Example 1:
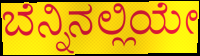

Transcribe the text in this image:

ಬೆನ್ನಿನಲ್ಲಿಯೇ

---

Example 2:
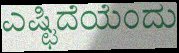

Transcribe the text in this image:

ಎಷ್ಟಿದೆಯೆಂದು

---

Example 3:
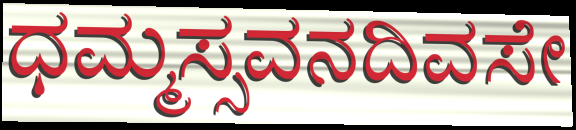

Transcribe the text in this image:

ಧಮ್ಮಸ್ಸವನದಿವಸೇ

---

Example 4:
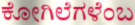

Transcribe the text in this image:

ಕೋಗಿಲೆಗಳೆಂಬ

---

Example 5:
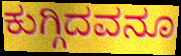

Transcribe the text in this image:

ಕುಗ್ಗಿದವನೂ